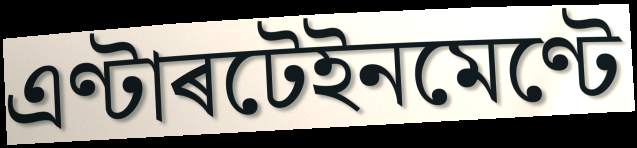
এণ্টাৰটেইনমেণ্টে